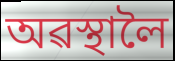
অৱস্থালৈ